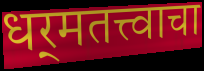
धर्मतत्त्वाचा